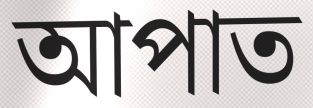
আপাত